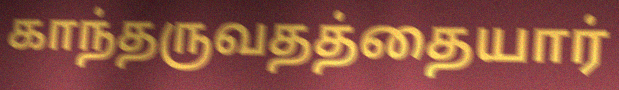
காந்தருவதத்தையார்